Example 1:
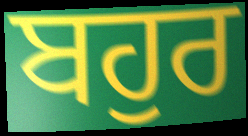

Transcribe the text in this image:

ਬਹੁਰ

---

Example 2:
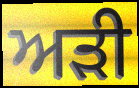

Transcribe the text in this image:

ਅੜੀ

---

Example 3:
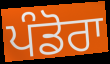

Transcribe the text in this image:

ਪੰਡੋਰਾ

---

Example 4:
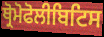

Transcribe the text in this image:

ਥ੍ਰੋਮੋਫੋਲੀਬਿਟਿਸ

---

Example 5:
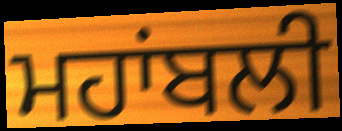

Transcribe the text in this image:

ਮਹਾਂਬਲੀ